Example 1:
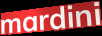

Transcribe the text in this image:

mardini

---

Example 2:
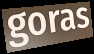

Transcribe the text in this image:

goras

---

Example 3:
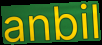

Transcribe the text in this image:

anbil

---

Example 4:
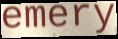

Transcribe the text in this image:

emery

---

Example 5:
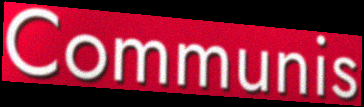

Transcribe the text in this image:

Communis